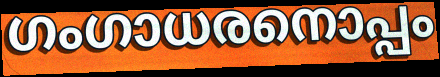
ഗംഗാധരനൊപ്പം